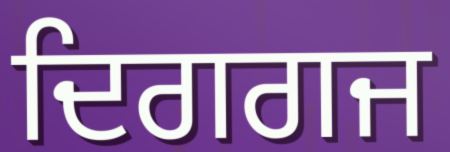
ਦਿਗਗਜ